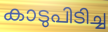
കാടുപിടിച്ച